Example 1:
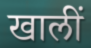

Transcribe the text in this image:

खालीं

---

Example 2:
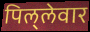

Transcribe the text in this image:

पिल्लेवार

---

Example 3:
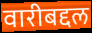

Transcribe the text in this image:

वारीबद्दल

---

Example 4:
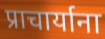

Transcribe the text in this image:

प्राचार्याना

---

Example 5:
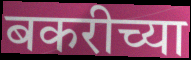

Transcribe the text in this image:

बकरीच्या